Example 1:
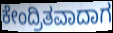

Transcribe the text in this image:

ಕೇಂದ್ರಿತವಾದಾಗ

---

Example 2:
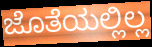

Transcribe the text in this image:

ಜೊತೆಯಲ್ಲಿಲ್ಲ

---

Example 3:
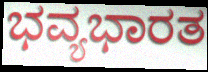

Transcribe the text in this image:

ಭವ್ಯಭಾರತ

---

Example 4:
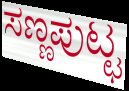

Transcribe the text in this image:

ಸಣ್ಣಪುಟ್ಟ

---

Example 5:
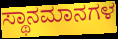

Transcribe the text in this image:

ಸ್ಥಾನಮಾನಗಳ